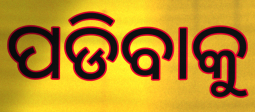
ପଡିବାକୁ